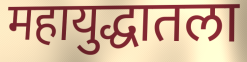
महायुद्धातला